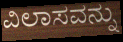
ವಿಲಾಸವನ್ನು